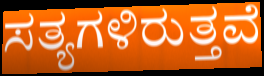
ಸತ್ಯಗಳಿರುತ್ತವೆ